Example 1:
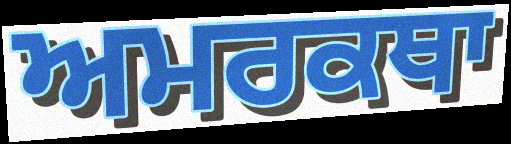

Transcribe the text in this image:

ਅਮਰਕਥਾ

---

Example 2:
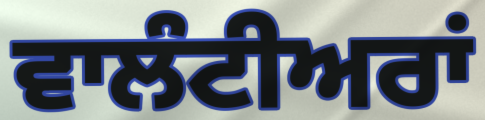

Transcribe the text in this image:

ਵਾਲੰਟੀਅਰਾਂ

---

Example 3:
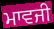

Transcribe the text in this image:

ਮਾਵਜੀ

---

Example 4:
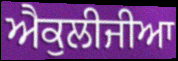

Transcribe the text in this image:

ਐਕੁਲੀਜੀਆ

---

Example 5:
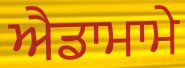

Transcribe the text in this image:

ਐਡਾਮਾਮੇ